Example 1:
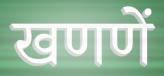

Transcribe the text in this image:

खणणें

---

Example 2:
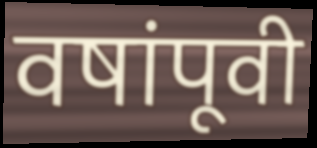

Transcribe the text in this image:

वषांपूवी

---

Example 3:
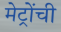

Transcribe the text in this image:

मेट्रोंची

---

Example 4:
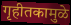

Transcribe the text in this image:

गृहीतकामुळे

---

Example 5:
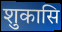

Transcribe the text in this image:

शुकासि